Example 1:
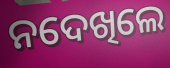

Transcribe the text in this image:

ନଦେଖିଲେ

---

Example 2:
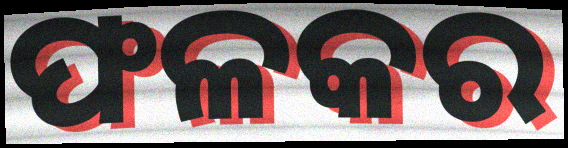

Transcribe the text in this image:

ଫଳକର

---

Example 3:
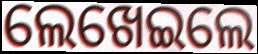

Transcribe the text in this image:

ଲେଖେଇଲେ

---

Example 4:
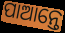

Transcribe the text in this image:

ପାଆନ୍ତେ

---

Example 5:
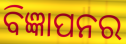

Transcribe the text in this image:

ବିଜ୍ଞାପନର